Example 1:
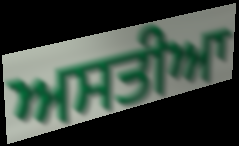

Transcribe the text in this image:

ਅਸਤੀਆ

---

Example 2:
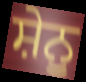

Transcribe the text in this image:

ਸ਼ੇਨੂ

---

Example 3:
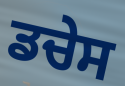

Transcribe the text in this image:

ਡਚੇਸ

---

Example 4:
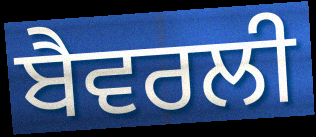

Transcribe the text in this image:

ਬੈਵਰਲੀ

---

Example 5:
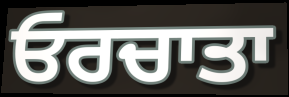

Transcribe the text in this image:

ਓਰਚਾਤਾ